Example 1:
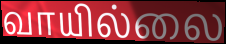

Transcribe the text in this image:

வாயில்லை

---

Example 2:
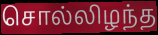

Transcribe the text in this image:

சொல்லிழந்த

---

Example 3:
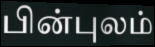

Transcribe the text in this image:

பின்புலம்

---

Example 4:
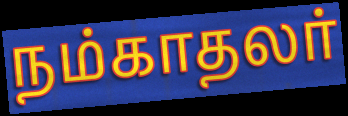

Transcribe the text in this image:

நம்காதலர்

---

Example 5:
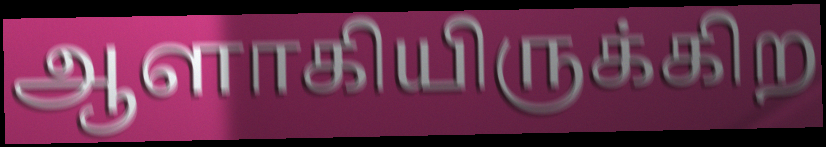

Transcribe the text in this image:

ஆளாகியிருக்கிற